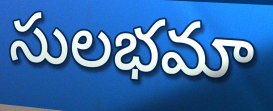
సులభమా